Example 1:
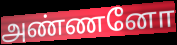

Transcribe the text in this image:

அண்ணனோ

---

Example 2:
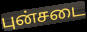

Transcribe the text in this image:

புன்சடை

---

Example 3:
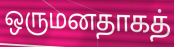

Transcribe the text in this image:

ஒருமனதாகத்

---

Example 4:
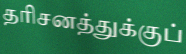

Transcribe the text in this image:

தரிசனத்துக்குப்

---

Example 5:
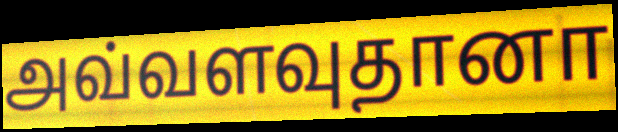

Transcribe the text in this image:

அவ்வளவுதானா